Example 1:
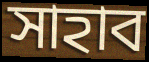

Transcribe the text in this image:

সাহাব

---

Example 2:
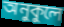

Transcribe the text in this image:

অনুকুলে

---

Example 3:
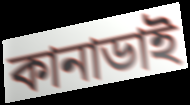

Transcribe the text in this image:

কানাডাই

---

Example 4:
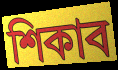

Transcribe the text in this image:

শিকাব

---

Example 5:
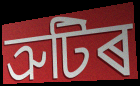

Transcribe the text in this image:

ত্ৰুটিৰ